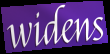
widens